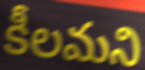
కీలమని